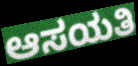
ಆಸಯತಿ